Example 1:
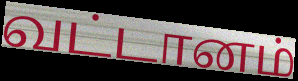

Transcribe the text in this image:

வட்டானம்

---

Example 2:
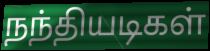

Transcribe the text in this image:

நந்தியடிகள்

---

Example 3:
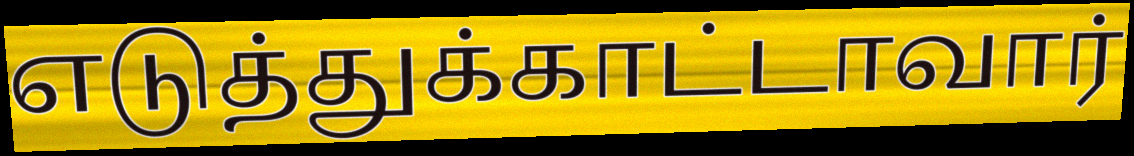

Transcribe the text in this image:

எடுத்துக்காட்டாவார்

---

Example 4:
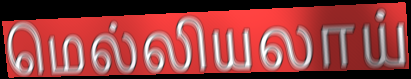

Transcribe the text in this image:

மெல்லியலாய்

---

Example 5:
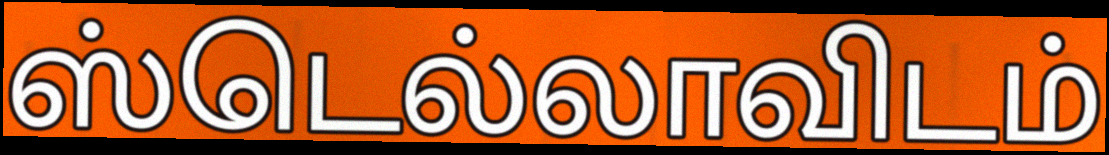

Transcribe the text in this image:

ஸ்டெல்லாவிடம்